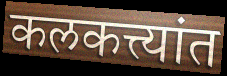
कलकत्त्यांत